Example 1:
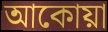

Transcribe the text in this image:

আকোয়া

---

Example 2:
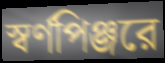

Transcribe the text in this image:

স্বর্ণপিঞ্জরে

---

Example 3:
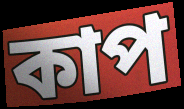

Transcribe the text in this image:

কাপ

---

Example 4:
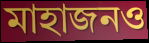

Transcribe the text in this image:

মাহাজনও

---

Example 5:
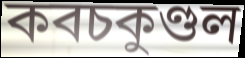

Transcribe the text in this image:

কবচকুণ্ডল